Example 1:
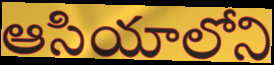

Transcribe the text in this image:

ఆసియాలోని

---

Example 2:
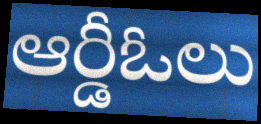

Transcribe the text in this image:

ఆర్డీఓలు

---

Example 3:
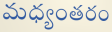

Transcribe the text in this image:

మధ్యంతరం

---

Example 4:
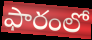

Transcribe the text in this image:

ఫారంలో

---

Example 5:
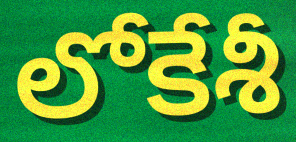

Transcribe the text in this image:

లోకేశీ